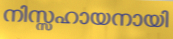
നിസ്സഹായനായി